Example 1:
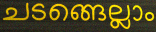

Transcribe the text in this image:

ചടങ്ങെല്ലാം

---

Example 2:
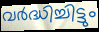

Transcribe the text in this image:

വർദ്ധിച്ചിട്ടും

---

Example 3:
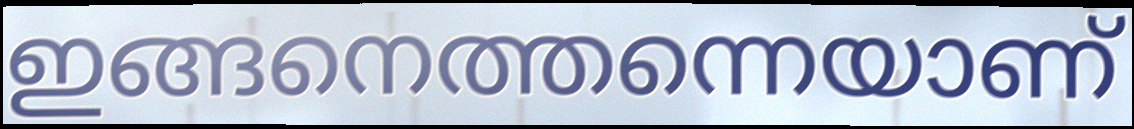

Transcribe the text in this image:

ഇങ്ങനെത്തന്നെയാണ്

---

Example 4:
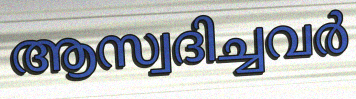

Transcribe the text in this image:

ആസ്വദിച്ചവർ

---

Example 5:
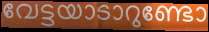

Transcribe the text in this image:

വേട്ടയാടാറുണ്ടോ